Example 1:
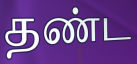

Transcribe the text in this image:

தண்ட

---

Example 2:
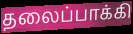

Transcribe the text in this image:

தலைப்பாக்கி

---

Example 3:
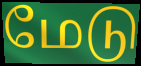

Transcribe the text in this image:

மேடு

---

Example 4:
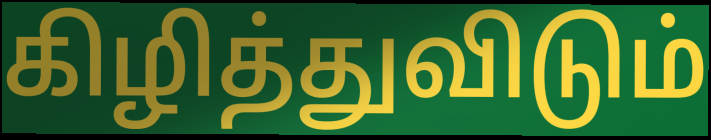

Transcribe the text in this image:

கிழித்துவிடும்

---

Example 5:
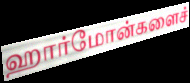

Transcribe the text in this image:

ஹார்மோன்களைச்